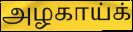
அழகாய்க்